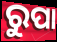
ରୁପା